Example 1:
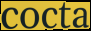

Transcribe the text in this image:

cocta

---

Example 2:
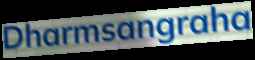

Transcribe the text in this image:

Dharmsangraha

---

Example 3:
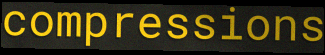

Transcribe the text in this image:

compressions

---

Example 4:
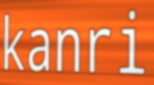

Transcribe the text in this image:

kanri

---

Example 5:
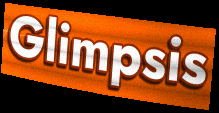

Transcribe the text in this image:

Glimpsis